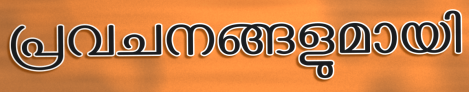
പ്രവചനങ്ങളുമായി